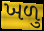
ખળુ